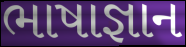
ભાષાજ્ઞાન